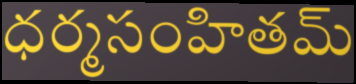
ధర్మసంహితమ్